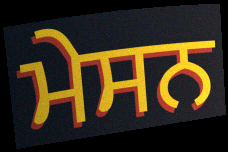
ਮੇਸਨ